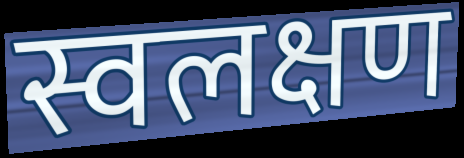
स्वलक्षण